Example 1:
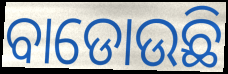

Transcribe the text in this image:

ବାଡୋଉଛି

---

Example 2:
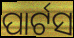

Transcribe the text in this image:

ପାର୍ଟସ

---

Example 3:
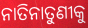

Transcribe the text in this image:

ନାତିନାତୁଣୀକୁ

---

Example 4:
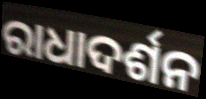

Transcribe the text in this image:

ରାଧାଦର୍ଶନ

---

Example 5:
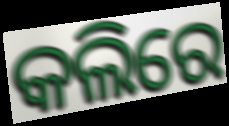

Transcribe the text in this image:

କଲିରେ